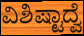
ವಿಶಿಷ್ಟಾದ್ವೆ